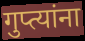
गुप्त्यांना